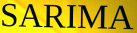
SARIMA